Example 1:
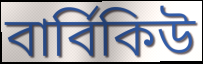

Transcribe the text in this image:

বাৰ্বিকিউ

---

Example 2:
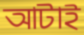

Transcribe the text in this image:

আটাই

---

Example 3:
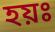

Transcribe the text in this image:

হয়ঃ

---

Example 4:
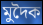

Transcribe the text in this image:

মুদৈক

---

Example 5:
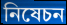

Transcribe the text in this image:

নিষেচন